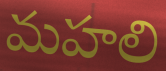
మహలి